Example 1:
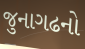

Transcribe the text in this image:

જુનાગઢનો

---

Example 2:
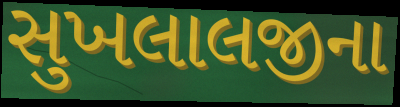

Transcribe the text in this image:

સુખલાલજીના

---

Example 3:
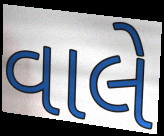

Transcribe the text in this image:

વાલે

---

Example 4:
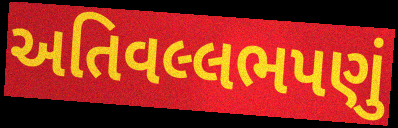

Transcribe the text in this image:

અતિવલ્લભપણું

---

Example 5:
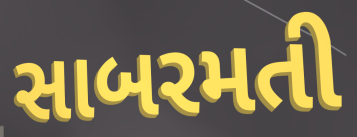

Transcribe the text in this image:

સાબરમતી